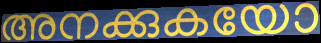
അനക്കുകയോ